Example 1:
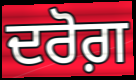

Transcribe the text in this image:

ਦਰੋਗ਼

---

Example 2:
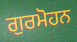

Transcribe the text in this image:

ਗੁਰਮੋਹਨ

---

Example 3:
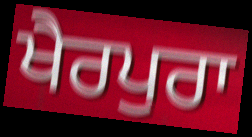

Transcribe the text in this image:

ਖੈਰਪੁਰਾ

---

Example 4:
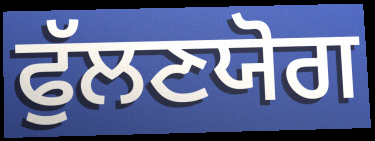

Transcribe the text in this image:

ਫੁੱਲਣਯੋਗ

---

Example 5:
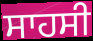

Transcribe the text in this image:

ਸਾਹਸੀ